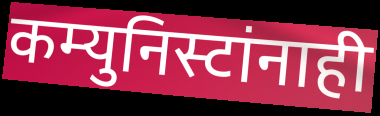
कम्युनिस्टांनाही